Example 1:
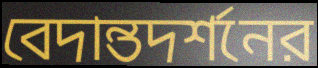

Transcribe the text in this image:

বেদান্তদর্শনের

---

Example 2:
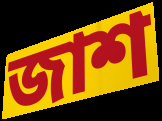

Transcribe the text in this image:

জাশ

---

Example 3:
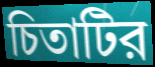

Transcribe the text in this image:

চিতাটির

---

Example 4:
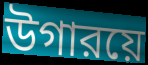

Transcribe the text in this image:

উগারয়ে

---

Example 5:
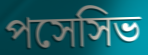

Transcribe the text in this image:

পসেসিভ